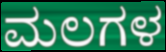
ಮಲಗಳ